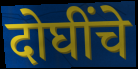
दोघींचे